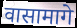
वासामागे